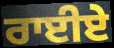
ਰਾਈਏ